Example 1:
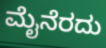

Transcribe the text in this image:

ಮೈನೆರದು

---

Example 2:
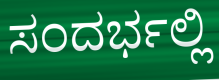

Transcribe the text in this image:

ಸಂದರ್ಭಲ್ಲಿ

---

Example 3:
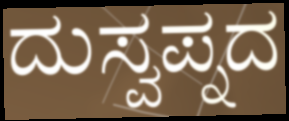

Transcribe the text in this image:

ದುಸ್ವಪ್ನದ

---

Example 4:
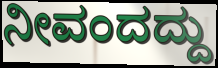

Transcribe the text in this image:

ನೀವಂದದ್ದು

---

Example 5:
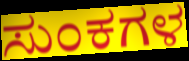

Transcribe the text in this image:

ಸುಂಕಗಳ